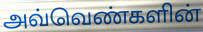
அவ்வெண்களின்